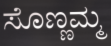
ಸೊಣ್ಣಮ್ಮ